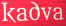
kadva